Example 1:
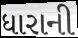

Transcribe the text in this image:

ધારાની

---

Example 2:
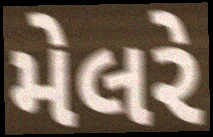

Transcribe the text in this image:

મેલરે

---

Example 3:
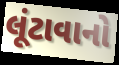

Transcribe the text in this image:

લૂંટાવાનો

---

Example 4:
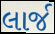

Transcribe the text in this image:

લાર્જ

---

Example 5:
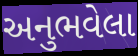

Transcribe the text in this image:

અનુભવેલા